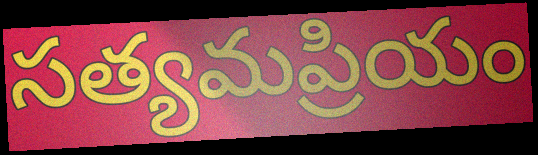
సత్యమప్రియం